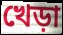
খেড়া